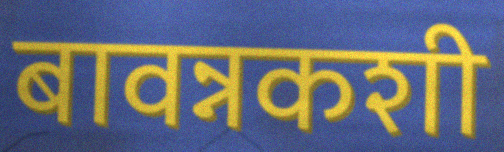
बावन्नकशी